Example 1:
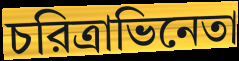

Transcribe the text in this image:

চরিত্রাভিনেতা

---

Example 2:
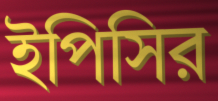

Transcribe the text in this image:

ইপিসির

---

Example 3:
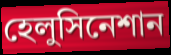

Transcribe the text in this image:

হেলুসিনেশান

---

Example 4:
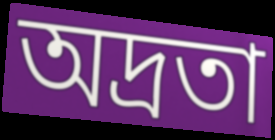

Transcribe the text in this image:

অদ্রতা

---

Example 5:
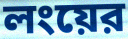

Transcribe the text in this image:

লংয়ের